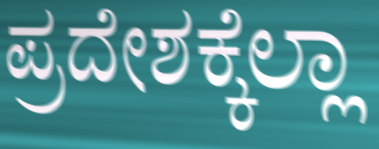
ಪ್ರದೇಶಕ್ಕೆಲ್ಲಾ